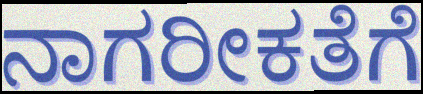
ನಾಗರೀಕತೆಗೆ